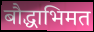
बौद्धाभिमत